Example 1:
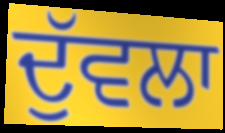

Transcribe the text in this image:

ਦੁੱਵਲਾ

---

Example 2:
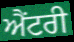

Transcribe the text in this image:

ਐਂਟਰੀ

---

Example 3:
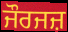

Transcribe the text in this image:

ਜੌਰਜਜ਼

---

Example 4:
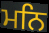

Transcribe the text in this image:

ਮਨਿ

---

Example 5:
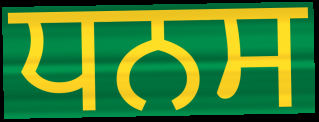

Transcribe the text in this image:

ਧਨਸ